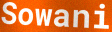
Sowani